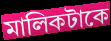
মালিকটাকে